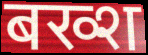
बख्श